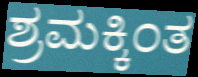
ಶ್ರಮಕ್ಕಿಂತ